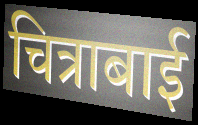
चित्राबाई